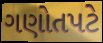
ગણોતપટે